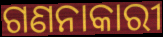
ଗଣନାକାରୀ